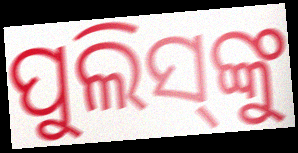
ପୁଲିସ୍‌ଙ୍କୁ